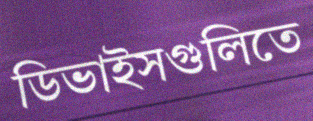
ডিভাইসগুলিতে